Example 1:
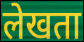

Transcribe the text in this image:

लेखता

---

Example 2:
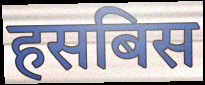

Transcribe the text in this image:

हसबिस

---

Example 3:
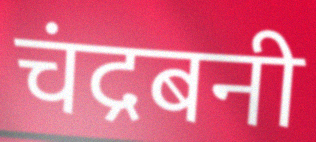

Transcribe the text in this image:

चंद्रबनी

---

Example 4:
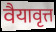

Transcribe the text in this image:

वैयावृत्त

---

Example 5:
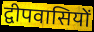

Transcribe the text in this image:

द्वीपवासियों